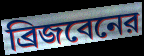
ব্রিজবেনের